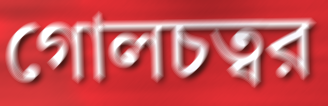
গোলচত্বর